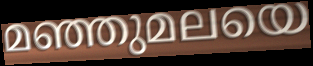
മഞ്ഞുമലയെ